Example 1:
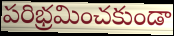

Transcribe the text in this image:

పరిభ్రమించకుండా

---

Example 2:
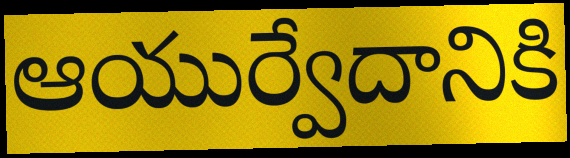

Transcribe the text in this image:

ఆయుర్వేదానికి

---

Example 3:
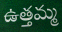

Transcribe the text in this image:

ఉత్తమ్మ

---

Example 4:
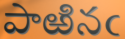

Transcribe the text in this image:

పాఱినఁ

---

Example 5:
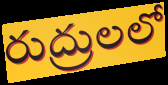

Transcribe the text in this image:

రుద్రులలో